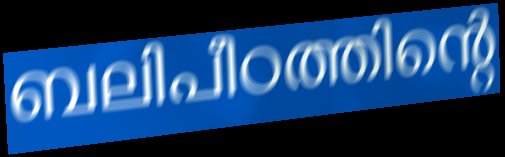
ബലിപീഠത്തിന്റെ